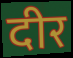
दीर